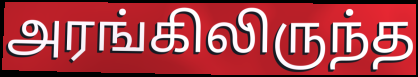
அரங்கிலிருந்த